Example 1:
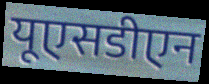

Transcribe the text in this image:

यूएसडीएन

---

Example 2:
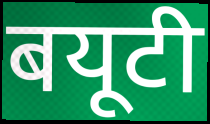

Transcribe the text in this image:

बयूटी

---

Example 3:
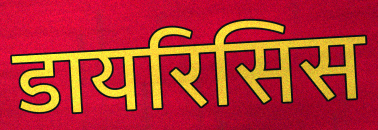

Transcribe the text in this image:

डायरिसिस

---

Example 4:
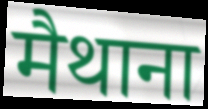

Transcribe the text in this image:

मैथाना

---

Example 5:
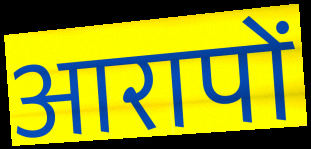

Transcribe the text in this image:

आरापों